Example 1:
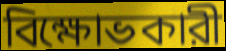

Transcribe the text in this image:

বিক্ষোভকারী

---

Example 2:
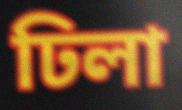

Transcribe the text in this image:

ঢিলা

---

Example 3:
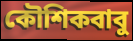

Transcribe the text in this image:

কৌশিকবাবু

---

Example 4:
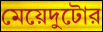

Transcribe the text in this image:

মেয়েদুটোর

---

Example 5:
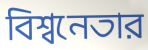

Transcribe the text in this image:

বিশ্বনেতার